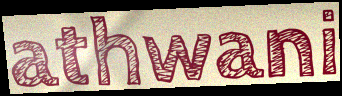
athwani